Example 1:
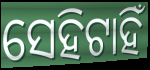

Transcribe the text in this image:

ସେହିଟାହିଁ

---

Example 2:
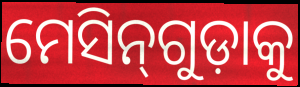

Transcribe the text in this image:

ମେସିନ୍‌ଗୁଡ଼ାକୁ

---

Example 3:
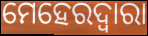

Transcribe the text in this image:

ମେହେରଦ୍ୱାରା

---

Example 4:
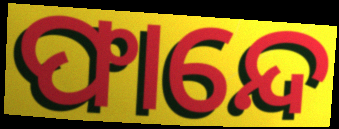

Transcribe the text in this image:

ଫାନ୍ଦେ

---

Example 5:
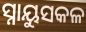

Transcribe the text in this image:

ସ୍ନାୟୁସକଳ